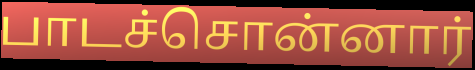
பாடச்சொன்னார்